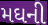
મઘની